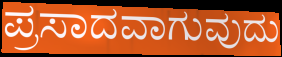
ಪ್ರಸಾದವಾಗುವುದು